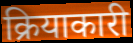
क्रियाकारी